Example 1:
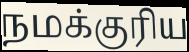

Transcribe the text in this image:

நமக்குரிய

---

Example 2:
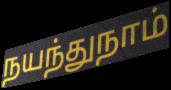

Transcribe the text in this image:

நயந்துநாம்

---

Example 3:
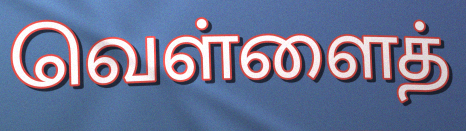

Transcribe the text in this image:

வெள்ளைத்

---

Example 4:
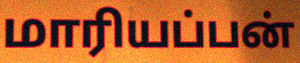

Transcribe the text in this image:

மாரியப்பன்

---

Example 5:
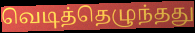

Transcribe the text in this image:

வெடித்தெழுந்தது